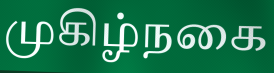
முகிழ்நகை